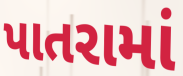
પાતરામાં